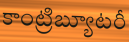
కాంట్రిబ్యూటరీ